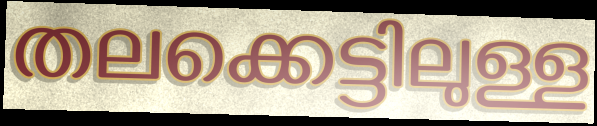
തലക്കെട്ടിലുള്ള